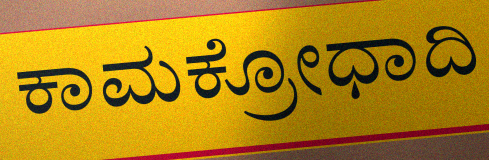
ಕಾಮಕ್ರೋಧಾದಿ